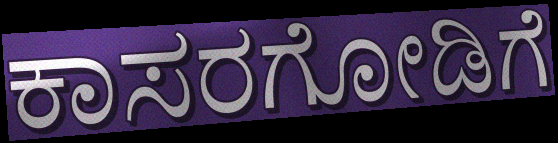
ಕಾಸರಗೋಡಿಗೆ